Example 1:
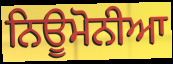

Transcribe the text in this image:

ਨਿਊਮੋਨੀਆ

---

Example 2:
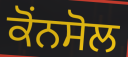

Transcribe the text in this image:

ਕੋਂਨਸੋਲ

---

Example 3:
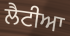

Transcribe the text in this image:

ਲੈਟੀਆ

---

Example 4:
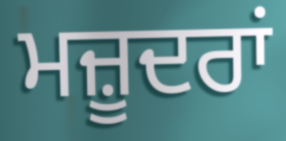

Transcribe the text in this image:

ਮਜ਼ੂਦਰਾਂ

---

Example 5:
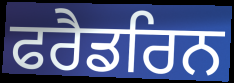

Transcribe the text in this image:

ਫਰੈਡਰਿਨ